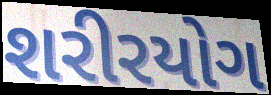
શરીરયોગ